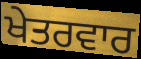
ਖੇਤਰਵਾਰ